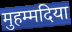
मुहम्मदिया